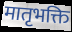
मातृभक्ति